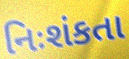
નિઃશંકતા